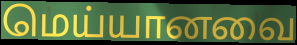
மெய்யானவை